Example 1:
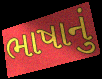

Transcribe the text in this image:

ભાષાનું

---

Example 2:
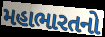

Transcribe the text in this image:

મહાભારતનો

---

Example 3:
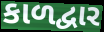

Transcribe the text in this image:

કાળદ્વાર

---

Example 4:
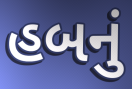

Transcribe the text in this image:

હબનું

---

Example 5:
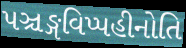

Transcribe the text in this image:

પઞ્ચઙ્ગવિપ્પહીનોતિ